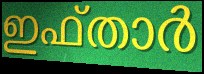
ഇഫ്താർ